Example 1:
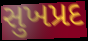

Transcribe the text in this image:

સુખપ્રદ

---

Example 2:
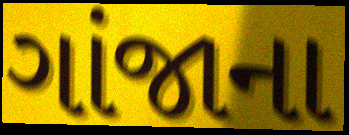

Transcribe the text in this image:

ગાંજાના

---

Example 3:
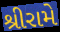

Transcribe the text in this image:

શ્રીરામે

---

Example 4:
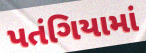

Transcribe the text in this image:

પતંગિયામાં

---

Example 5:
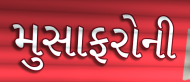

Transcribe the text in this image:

મુસાફરોની